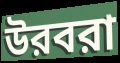
উরবরা